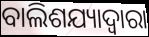
ବାଲିଶଯ୍ୟାଦ୍ଵାରା